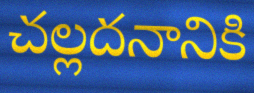
చల్లదనానికి